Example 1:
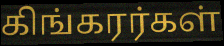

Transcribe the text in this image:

கிங்கரர்கள்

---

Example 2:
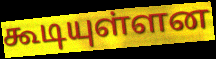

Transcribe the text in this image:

கூடியுள்ளன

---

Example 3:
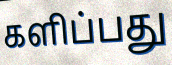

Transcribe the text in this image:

களிப்பது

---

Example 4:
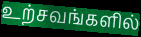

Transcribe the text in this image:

உற்சவங்களில்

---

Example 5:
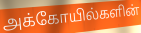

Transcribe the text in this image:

அக்கோயில்களின்